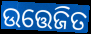
ଉତ୍ତେଜିତ